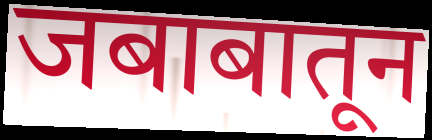
जबाबातून